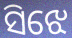
ସିଝେ